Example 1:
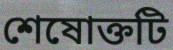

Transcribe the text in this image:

শেষোক্তটি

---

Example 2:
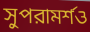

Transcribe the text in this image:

সুপরামর্শও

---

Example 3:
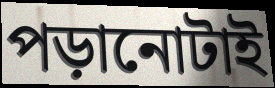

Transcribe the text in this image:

পড়ানোটাই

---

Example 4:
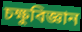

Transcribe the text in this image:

চক্ষুবিজ্ঞান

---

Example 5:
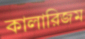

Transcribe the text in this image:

কালারিজম